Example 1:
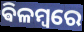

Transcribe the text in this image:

ଵିଳମ୍ବରେ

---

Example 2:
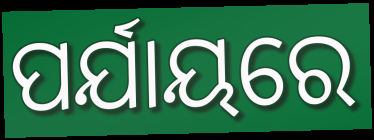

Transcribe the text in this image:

ପର୍ଯାୟରେ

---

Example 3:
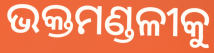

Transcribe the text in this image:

ଭକ୍ତମଣ୍ଡଳୀକୁ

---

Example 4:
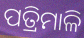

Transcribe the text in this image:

ପତ୍ରିମାଳି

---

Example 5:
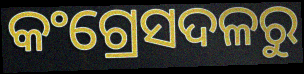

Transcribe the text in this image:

କଂଗ୍ରେସଦଳରୁ